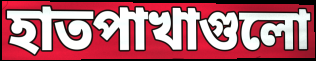
হাতপাখাগুলো